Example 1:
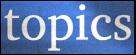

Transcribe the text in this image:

topics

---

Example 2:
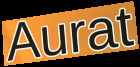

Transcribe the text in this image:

Aurat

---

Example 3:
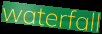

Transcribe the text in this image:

waterfall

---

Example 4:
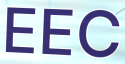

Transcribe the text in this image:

EEC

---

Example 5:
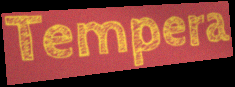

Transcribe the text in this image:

Tempera